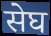
सेघ